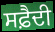
ਸਫ਼ੈਦੀ